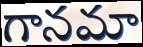
గానమా